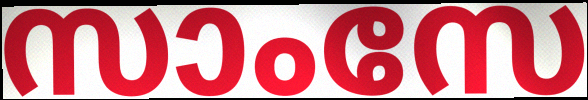
സാംസേ